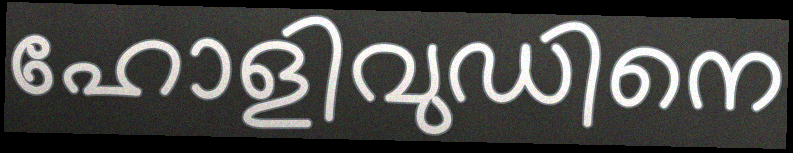
ഹോളിവുഡിനെ